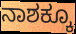
ನಾಶಕ್ಕೂ